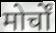
मोर्चों